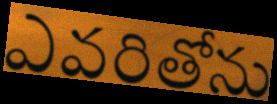
ఎవరితోను